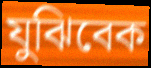
যুঝিবেক